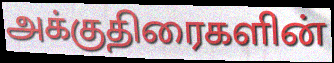
அக்குதிரைகளின்